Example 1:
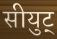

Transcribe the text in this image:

सीयुट्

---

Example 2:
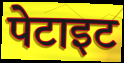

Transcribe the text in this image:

पेटाइट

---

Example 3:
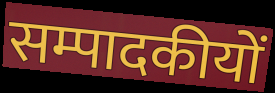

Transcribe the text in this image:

सम्पादकीयों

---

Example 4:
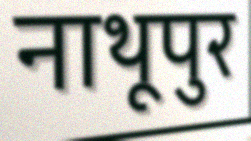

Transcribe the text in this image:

नाथूपुर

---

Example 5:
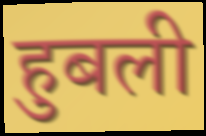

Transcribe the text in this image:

हुबली